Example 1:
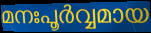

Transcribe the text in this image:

മനഃപൂർവ്വമായ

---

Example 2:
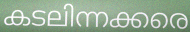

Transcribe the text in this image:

കടലിന്നക്കരെ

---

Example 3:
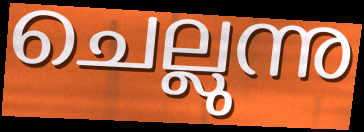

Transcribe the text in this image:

ചെല്ലുന്നു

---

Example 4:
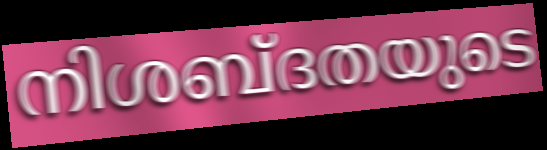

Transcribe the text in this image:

നിശബ്ദതയുടെ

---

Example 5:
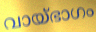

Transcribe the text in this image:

വായ്ഭാഗം